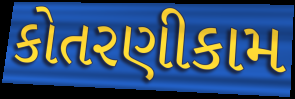
કોતરણીકામ